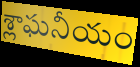
శ్లాఘనీయం